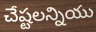
చేష్టలన్నియు